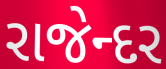
રાજેન્દર